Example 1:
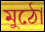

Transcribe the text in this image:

মুঠো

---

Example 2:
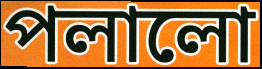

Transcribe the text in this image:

পলালো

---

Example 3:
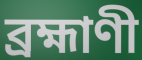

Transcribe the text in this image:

ব্রহ্মাণী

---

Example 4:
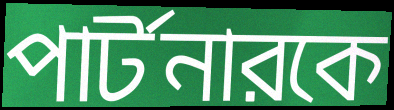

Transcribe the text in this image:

পার্টনারকে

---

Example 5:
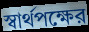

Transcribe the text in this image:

স্বার্থপক্ষের